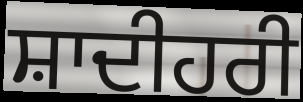
ਸ਼ਾਦੀਹਰੀ